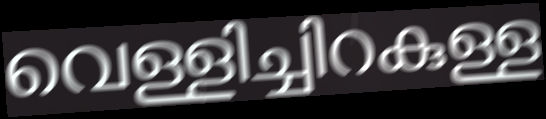
വെള്ളിച്ചിറകുള്ള